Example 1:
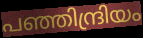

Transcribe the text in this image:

പഞ്ഞിന്ദ്രിയം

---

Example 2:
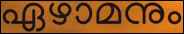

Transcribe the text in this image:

ഏഴാമനും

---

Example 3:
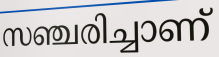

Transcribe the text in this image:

സഞ്ചരിച്ചാണ്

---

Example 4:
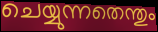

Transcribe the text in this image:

ചെയ്യുന്നതെന്തും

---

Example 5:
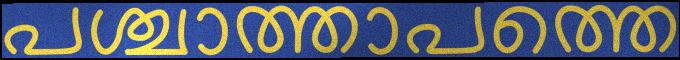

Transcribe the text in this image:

പശ്ചാത്താപത്തെ